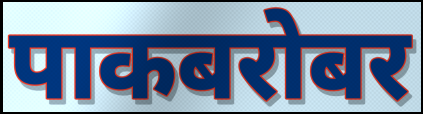
पाकबरोबर